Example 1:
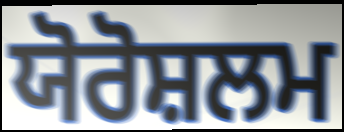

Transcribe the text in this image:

ਯੋਰੋਸ਼ਲਮ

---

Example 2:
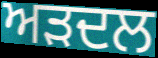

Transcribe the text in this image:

ਅੜਦਲ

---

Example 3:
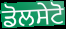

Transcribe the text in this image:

ਡੋਲਸੇਟੋ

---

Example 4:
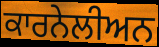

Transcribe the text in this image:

ਕਾਰਨੇਲੀਅਨ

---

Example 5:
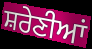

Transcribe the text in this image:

ਸ਼ਰੇਣੀਆਂ